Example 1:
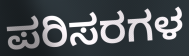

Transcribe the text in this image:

ಪರಿಸರಗಳ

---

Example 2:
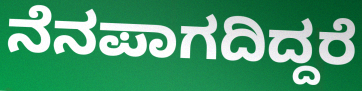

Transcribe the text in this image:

ನೆನಪಾಗದಿದ್ದರೆ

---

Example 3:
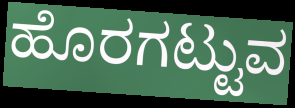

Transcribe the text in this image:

ಹೊರಗಟ್ಟುವ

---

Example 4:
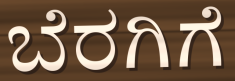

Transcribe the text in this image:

ಬೆರಗಿಗೆ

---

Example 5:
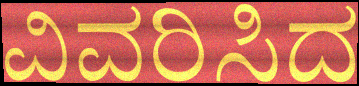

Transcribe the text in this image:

ವಿವರಿಸಿದ